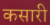
कसारी